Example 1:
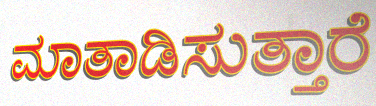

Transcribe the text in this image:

ಮಾತಾಡಿಸುತ್ತಾರೆ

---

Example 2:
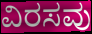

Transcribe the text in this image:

ವಿರಸವು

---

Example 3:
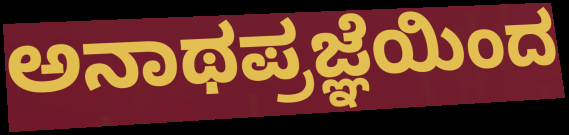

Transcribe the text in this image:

ಅನಾಥಪ್ರಜ್ಞೆಯಿಂದ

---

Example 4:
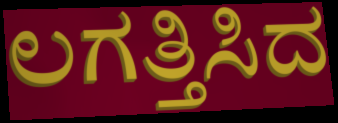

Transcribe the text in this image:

ಲಗತ್ತಿಸಿದ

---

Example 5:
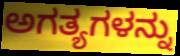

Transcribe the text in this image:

ಅಗತ್ಯಗಳನ್ನು